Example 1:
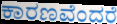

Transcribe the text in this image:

ಕಾರಣವೆಂದರೆ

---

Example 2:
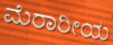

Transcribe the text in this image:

ಮೆರಾರೀಯ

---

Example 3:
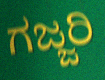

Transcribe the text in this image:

ಗಜ್ಜರಿ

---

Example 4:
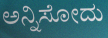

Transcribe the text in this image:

ಅನ್ನಿಸೋದು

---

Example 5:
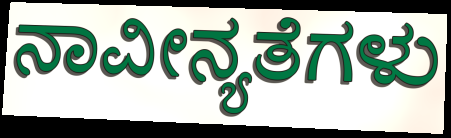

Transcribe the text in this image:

ನಾವೀನ್ಯತೆಗಳು